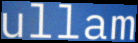
ullam